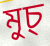
মুচ্